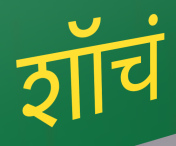
शॉचं